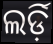
ଲର୍ଡ଼ି